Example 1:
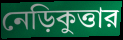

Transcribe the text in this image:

নেড়িকুত্তার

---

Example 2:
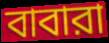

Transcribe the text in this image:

বাবারা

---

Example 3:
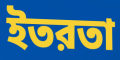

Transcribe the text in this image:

ইতরতা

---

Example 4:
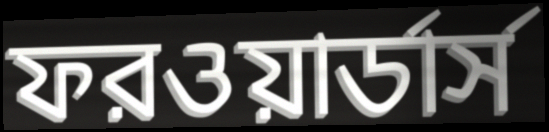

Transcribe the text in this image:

ফরওয়ার্ডার্স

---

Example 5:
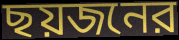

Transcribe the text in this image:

ছয়জনের